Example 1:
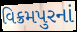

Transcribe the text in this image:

વિક્રમપુરનાં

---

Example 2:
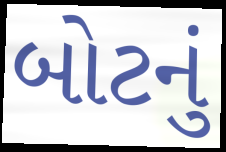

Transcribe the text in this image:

બોટનું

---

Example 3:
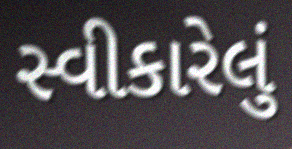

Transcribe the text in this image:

સ્વીકારેલું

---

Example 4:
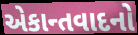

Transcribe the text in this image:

એકાન્તવાદનો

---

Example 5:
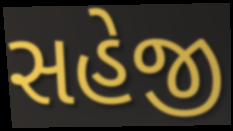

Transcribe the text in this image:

સહેજી